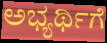
ಅಭ್ಯರ್ಥಿಗೆ